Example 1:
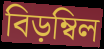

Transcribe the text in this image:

বিড়ম্বিল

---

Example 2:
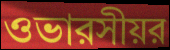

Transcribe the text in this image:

ওভারসীয়র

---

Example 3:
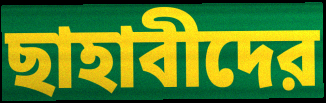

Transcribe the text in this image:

ছাহাবীদের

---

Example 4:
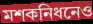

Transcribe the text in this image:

মশকনিধনেও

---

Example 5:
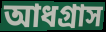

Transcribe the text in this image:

আধগ্রাস